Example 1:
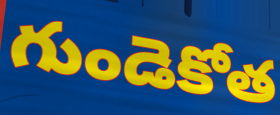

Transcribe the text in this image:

గుండెకోత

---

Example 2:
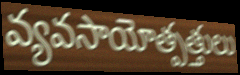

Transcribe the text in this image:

వ్యవసాయోత్పత్తులు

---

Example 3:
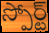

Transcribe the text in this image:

స్పోర్ట్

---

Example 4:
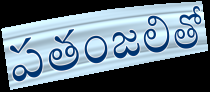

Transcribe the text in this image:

పతంజలితో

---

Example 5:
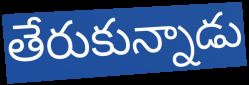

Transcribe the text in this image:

తేరుకున్నాడు